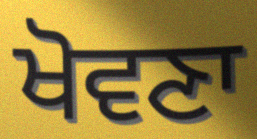
ਖੋਵਣਾ